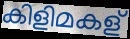
കിളിമകള്